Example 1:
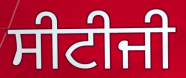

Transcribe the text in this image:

ਸੀਟੀਜੀ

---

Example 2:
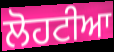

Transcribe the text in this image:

ਲੋਹਟੀਆ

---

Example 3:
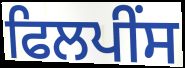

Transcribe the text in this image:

ਫਿਲਪੀਂਸ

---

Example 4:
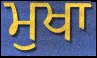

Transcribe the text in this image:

ਮੁਖਾ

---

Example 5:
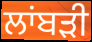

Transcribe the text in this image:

ਲਾਂਬੜੀ